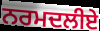
ਨਰਮਦਲੀਏ